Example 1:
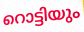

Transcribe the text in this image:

റൊട്ടിയും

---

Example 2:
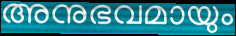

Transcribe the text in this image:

അനുഭവമായും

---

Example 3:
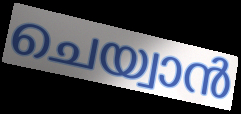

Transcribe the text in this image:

ചെയ്വാൻ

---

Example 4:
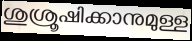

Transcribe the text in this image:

ശുശ്രൂഷിക്കാനുമുള്ള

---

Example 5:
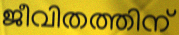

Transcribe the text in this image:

ജീവിതത്തിന്